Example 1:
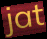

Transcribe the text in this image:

jat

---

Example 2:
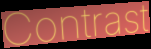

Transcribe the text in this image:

Contrast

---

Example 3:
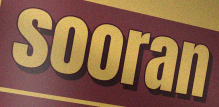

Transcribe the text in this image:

sooran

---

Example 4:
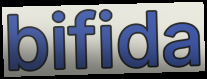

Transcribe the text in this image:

bifida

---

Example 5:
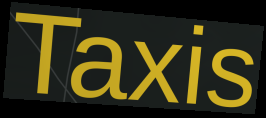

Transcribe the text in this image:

Taxis